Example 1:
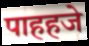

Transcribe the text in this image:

पाहहजे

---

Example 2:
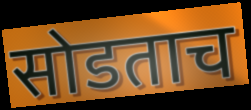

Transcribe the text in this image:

सोडताच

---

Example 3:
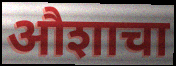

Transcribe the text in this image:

औशाचा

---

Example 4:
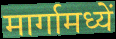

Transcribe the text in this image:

मार्गामध्यें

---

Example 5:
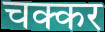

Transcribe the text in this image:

चक्कर